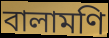
বালামণি